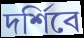
দর্শিবে